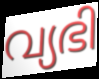
വ്യഭി